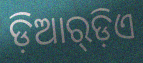
ଡ଼ିଆର୍‌ଡ଼ିଏ